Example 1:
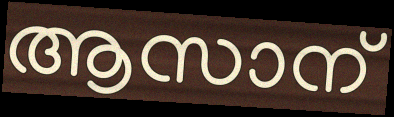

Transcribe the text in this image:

ആസാന്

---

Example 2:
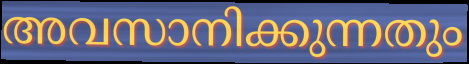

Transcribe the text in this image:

അവസാനിക്കുന്നതും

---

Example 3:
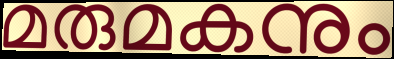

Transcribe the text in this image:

മരുമകനും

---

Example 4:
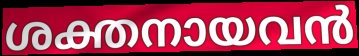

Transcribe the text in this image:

ശക്തനായവൻ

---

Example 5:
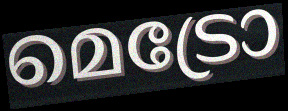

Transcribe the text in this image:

മെട്രോ